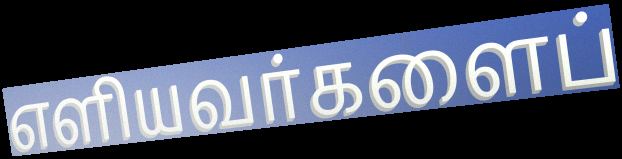
எளியவர்களைப்